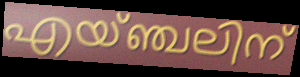
എയ്ഞ്ചലിന്